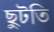
ছুটতি